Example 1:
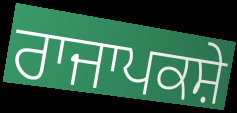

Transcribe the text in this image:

ਰਾਜਾਪਕਸ਼ੇ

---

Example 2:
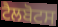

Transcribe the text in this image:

ਟੈਲਬੋਟਸ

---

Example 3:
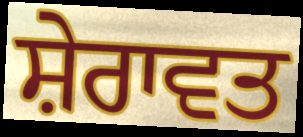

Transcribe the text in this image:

ਸ਼ੇਰਾਵਤ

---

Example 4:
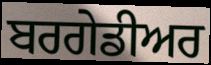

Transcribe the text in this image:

ਬਰਗੇਡੀਅਰ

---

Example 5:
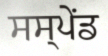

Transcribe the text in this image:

ਸਸ੍ਪੇੰਡ